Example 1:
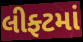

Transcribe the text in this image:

લીફ્ટમાં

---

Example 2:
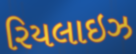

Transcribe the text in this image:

રિયલાઇઝ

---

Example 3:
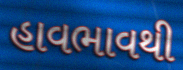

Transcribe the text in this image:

હાવભાવથી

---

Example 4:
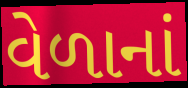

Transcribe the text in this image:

વેળાનાં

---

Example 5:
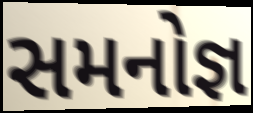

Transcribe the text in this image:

સમનોજ્ઞ